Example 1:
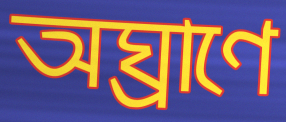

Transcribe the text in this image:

অঘ্রাণে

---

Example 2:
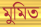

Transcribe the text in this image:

মুমিত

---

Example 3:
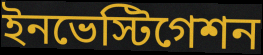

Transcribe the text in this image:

ইনভেস্টিগেশন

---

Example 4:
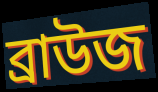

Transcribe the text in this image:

ব্রাউজ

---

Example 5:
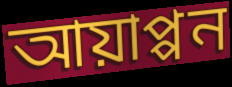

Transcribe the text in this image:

আয়াপ্পন